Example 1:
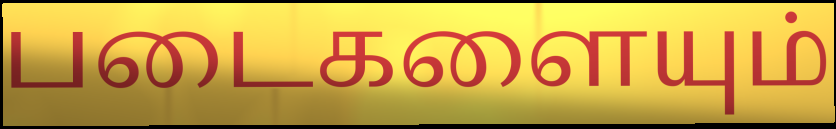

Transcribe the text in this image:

படைகளையும்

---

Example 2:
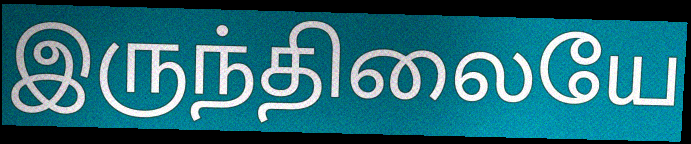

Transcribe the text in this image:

இருந்திலையே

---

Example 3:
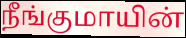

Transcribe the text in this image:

நீங்குமாயின்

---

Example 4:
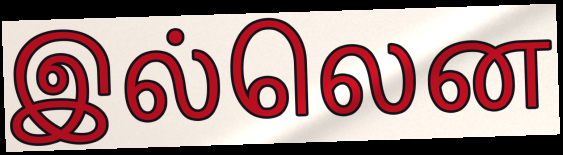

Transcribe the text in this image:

இல்லென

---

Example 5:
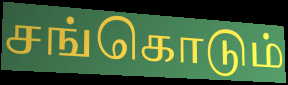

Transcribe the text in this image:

சங்கொடும்